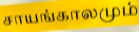
சாயங்காலமும்